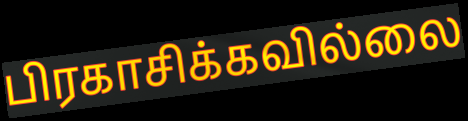
பிரகாசிக்கவில்லை